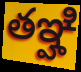
తఞ్హి